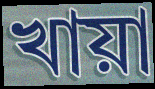
খায়া